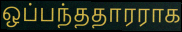
ஒப்பந்ததாரராக